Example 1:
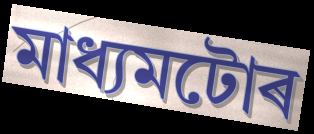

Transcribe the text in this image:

মাধ্যমটোৰ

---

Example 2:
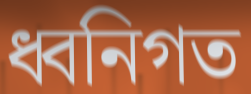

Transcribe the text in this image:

ধ্বনিগত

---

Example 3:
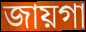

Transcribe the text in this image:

জায়গা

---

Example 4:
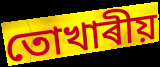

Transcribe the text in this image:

তোখাৰীয়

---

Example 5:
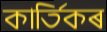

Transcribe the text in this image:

কাৰ্তিকৰ